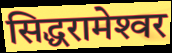
सिद्धरामेश्‍वर